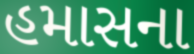
હમાસના